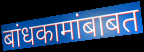
बांधकामांबाबत